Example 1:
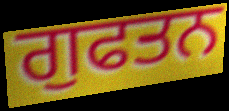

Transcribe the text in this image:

ਗੁਫਤਨ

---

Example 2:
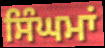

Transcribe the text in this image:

ਸਿੰਘਮਾਂ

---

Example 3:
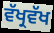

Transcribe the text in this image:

ਵੱਖ੍ਰਵੱਖ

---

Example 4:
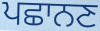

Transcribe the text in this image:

ਪਛਾਨਣ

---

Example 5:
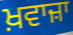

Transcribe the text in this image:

ਖ਼ਵਾਜ਼ਾ